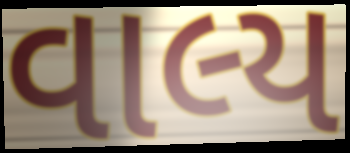
વાલ્ય